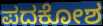
ಪದಕೋಶ